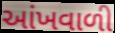
આંખવાળી